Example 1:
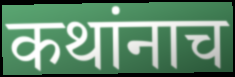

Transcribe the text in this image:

कथांनाच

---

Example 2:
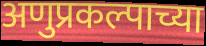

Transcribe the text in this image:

अणुप्रकल्पाच्या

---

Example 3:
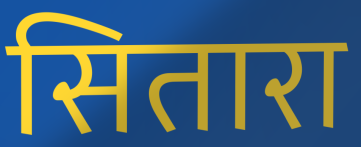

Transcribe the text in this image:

सितारा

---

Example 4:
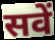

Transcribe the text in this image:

सवें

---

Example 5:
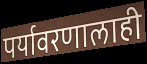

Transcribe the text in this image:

पर्यावरणालाही